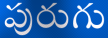
పురుగు